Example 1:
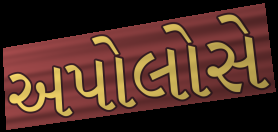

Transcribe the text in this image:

અપોલોસે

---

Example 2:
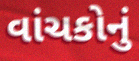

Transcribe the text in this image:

વાંચકોનું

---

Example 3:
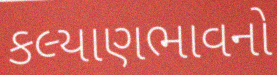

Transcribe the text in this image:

કલ્યાણભાવનો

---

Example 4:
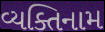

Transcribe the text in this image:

વ્યક્તિનામ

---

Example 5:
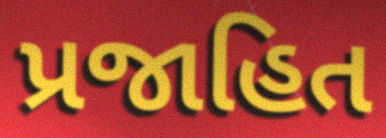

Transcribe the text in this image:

પ્રજાહિત